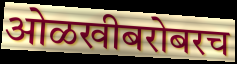
ओळखीबरोबरच